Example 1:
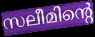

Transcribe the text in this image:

സലീമിന്റെ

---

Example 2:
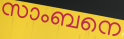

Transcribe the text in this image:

സാംബനെ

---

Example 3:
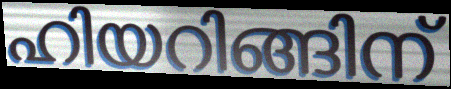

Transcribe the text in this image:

ഹിയറിങ്ങിന്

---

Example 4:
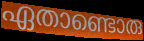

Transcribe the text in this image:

ഏതാണ്ടൊരു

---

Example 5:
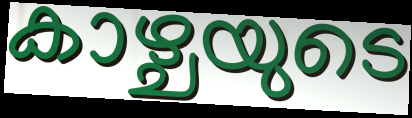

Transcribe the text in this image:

കാഴ്ചയുടെ